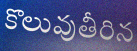
కొలువుతీరిన